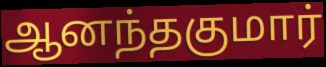
ஆனந்தகுமார்